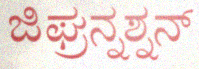
ಜಿಘ್ರನ್ನಶ್ನನ್